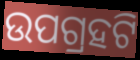
ଉପଗ୍ରହଟି